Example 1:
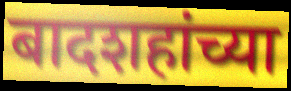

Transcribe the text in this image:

बादशहांच्या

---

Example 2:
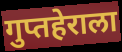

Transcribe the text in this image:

गुप्तहेराला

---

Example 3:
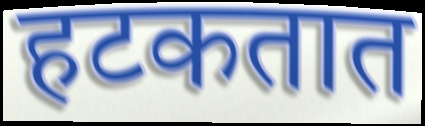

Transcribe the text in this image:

हटकतात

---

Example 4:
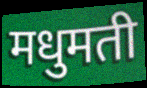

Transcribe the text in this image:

मधुमती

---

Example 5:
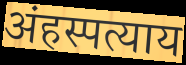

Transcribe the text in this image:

अंहस्पत्याय